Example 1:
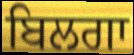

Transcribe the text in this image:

ਬਿਲਗਾ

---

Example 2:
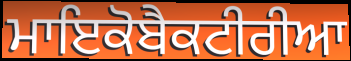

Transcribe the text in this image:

ਮਾਇਕੋਬੈਕਟੀਰੀਆ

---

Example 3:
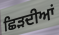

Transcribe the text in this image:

ਛਿੜਦੀਆਂ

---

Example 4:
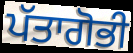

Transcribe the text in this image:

ਪੱਤਾਗੋਭੀ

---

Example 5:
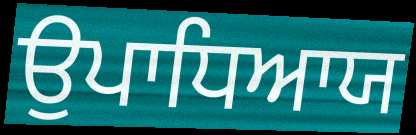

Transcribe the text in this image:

ਉਪਾਧਿਆਯ